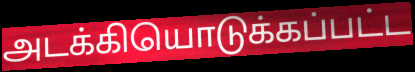
அடக்கியொடுக்கப்பட்ட